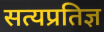
सत्यप्रतिज्ञ